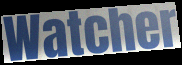
Watcher